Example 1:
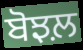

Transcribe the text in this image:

ਬੋਝਲ਼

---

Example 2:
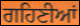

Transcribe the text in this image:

ਗਹਿਣੀਆਂ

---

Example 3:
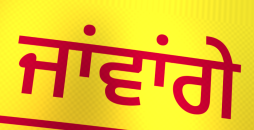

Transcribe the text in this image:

ਜਾਂਵਾਂਗੇ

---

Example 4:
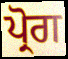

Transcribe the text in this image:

ਪ੍ਰੋਗ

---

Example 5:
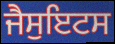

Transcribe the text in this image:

ਜੈਸੁਇਟਸ